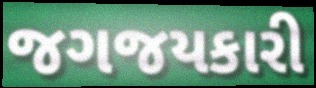
જગજયકારી